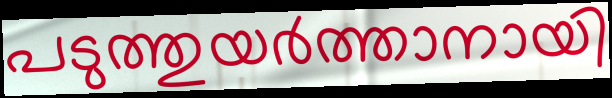
പടുത്തുയർത്താനായി